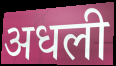
अधली